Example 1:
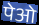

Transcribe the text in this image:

पेओ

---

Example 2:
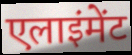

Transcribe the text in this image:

एलाइंमेंट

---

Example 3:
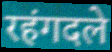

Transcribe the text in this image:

रहंगदले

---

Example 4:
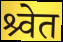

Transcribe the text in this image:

श्र्वेत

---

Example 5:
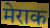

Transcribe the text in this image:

मेराक